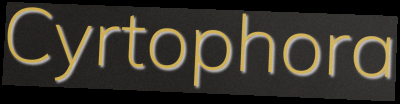
Cyrtophora